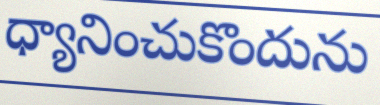
ధ్యానించుకొందును